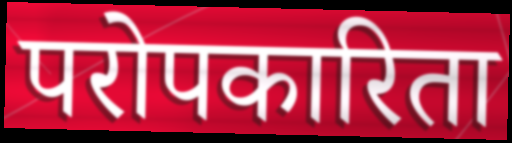
परोपकारिता